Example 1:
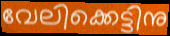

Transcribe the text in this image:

വേലിക്കെട്ടിനു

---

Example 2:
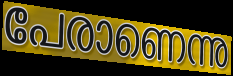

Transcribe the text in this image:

പേരാണെന്നു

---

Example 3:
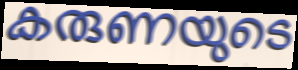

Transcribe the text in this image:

കരുണയുടെ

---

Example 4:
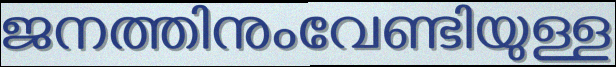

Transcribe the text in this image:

ജനത്തിനുംവേണ്ടിയുള്ള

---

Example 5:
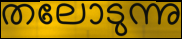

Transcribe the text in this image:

തലോടുന്നു